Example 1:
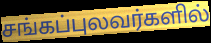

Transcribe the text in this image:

சங்கப்புலவர்களில்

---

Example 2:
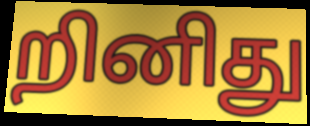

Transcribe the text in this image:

றினிது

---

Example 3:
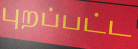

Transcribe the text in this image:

புறப்பட்ட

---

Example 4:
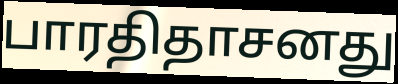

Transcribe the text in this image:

பாரதிதாசனது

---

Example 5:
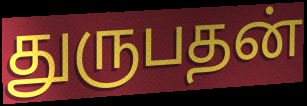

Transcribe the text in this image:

துருபதன்